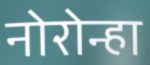
नोरोन्हा